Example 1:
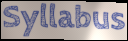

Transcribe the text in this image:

Syllabus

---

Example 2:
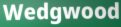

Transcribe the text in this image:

Wedgwood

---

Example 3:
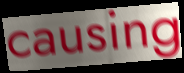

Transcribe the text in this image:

causing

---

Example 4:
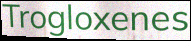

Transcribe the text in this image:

Trogloxenes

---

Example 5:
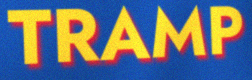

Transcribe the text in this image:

TRAMP